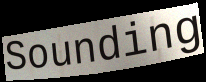
Sounding